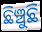
ଛିଞ୍ଚୁଛି